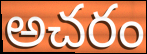
అచరం